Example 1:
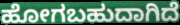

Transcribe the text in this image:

ಹೋಗಬಹುದಾಗಿದೆ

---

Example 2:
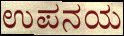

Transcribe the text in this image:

ಉಪನಯ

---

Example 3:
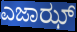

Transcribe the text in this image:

ಎಜಾಝ್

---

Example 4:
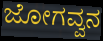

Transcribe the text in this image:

ಜೋಗವ್ವನ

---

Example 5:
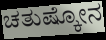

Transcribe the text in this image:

ಚತುಷ್ಕೋನ